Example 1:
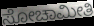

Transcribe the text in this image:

ಸೋಚಾಮೀತಿ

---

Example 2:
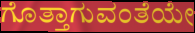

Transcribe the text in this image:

ಗೊತ್ತಾಗುವಂತೆಯೇ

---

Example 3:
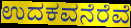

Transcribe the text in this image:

ಉದಕವನೆರೆವೆ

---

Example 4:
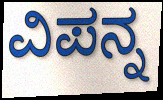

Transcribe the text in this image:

ವಿಪನ್ನ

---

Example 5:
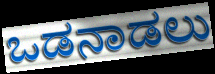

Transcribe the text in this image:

ಒಡನಾಡಲು